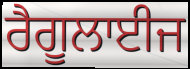
ਰੈਗੂਲਾਈਜ